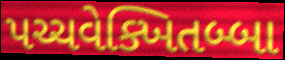
પચ્ચવેક્ખિતબ્બા